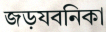
জড়যবনিকা